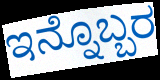
ಇನ್ನೊಬ್ಬರ